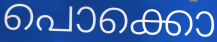
പൊക്കൊ